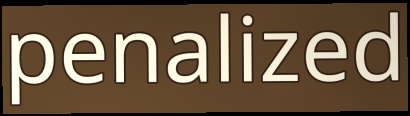
penalized